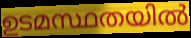
ഉടമസ്ഥതയിൽ